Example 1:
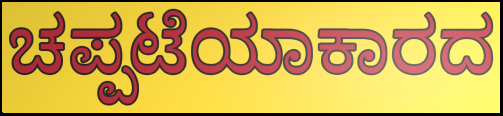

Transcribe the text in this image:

ಚಪ್ಪಟೆಯಾಕಾರದ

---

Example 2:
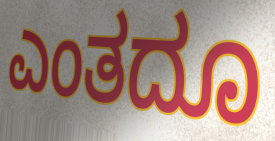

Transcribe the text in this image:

ಎಂತದೂ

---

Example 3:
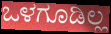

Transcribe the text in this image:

ಒಳಗೂಡಿಲ್ಲ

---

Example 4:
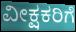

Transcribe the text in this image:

ವೀಕ್ಷಕರಿಗೆ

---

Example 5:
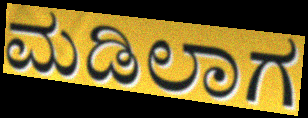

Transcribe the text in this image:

ಮಡಿಲಾಗ